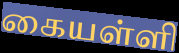
கையள்ளி